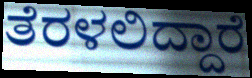
ತೆರಳಲಿದ್ದಾರೆ